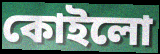
কোইলো